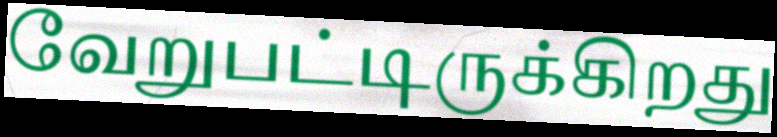
வேறுபட்டிருக்கிறது